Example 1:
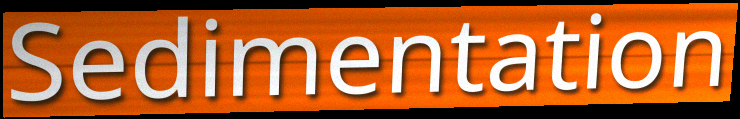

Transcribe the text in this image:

Sedimentation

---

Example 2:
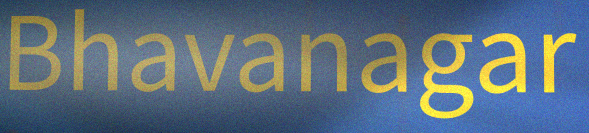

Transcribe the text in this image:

Bhavanagar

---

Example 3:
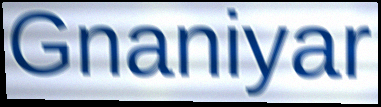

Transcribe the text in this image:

Gnaniyar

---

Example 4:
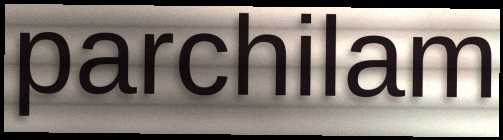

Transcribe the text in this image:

parchilam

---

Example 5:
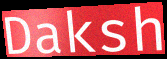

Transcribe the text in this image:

Daksh